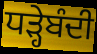
ਧੜ੍ਹੇਬੰਦੀ